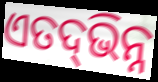
ଏତଦ୍‍ଭିନ୍ନ